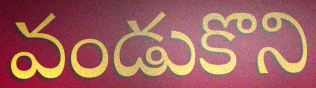
వండుకొని